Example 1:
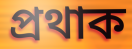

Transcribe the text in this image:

প্ৰথাক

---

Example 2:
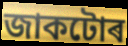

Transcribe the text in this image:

জাকটোৰ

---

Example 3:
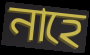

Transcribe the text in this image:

নাহে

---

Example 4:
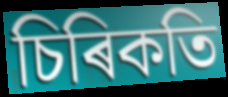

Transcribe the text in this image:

চিৰিকতি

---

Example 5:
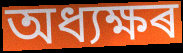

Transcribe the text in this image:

অধ্যক্ষৰ